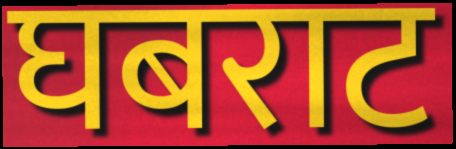
घबराट